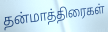
தன்மாத்திரைகள்